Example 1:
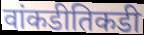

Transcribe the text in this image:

वांकडीतिकडी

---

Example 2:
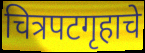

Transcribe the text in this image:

चित्रपटगृहाचे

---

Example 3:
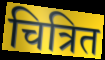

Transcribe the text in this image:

चित्रित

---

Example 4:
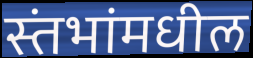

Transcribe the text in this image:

स्तंभांमधील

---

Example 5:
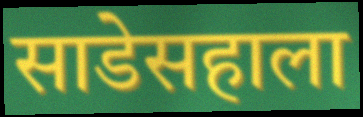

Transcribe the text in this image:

साडेसहाला